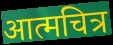
आत्मचित्र